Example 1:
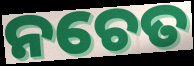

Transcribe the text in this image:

ନଚେତ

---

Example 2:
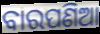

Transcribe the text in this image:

ବାରପଣିଆ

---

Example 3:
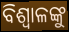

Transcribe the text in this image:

ବିଶ୍ୱାଳଙ୍କୁ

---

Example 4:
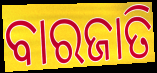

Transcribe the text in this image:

ବାରଜାତି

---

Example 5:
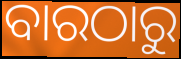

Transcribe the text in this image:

ବାରଠାରୁ